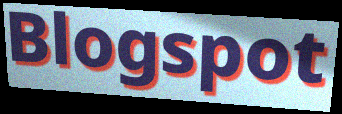
Blogspot